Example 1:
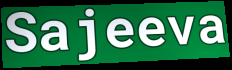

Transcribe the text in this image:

Sajeeva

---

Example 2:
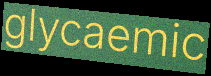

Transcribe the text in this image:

glycaemic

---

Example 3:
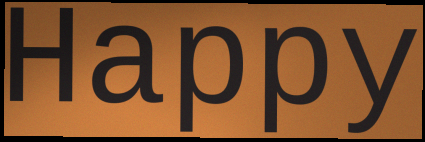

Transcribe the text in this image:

Happy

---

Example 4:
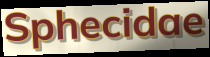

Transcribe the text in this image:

Sphecidae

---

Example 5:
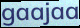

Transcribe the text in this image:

gaajaa